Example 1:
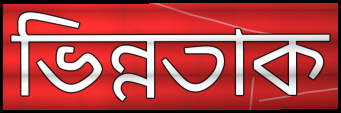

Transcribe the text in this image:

ভিন্নতাক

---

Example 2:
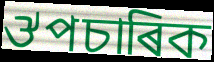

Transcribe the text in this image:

ঔপচাৰিক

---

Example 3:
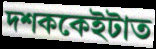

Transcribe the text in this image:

দশককেইটাত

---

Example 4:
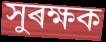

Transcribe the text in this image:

সুৰক্ষক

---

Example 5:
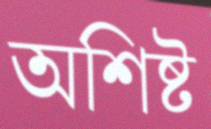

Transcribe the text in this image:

অশিষ্ট